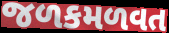
જળકમળવત